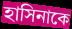
হাসিনাকে